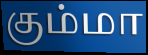
கும்மா